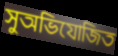
সুঅভিযোজিত